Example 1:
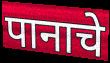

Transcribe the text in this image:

पानाचे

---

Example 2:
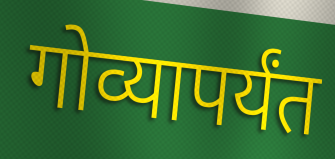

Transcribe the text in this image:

गोव्यापर्यंत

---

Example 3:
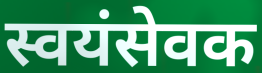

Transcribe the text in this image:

स्वयंसेवक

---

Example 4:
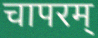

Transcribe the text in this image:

चापरम्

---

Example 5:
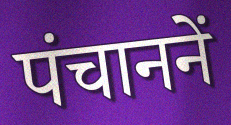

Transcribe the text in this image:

पंचाननें